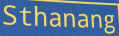
Sthanang